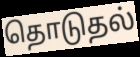
தொடுதல்